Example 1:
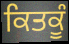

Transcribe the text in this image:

ਕਿਤਕੂੰ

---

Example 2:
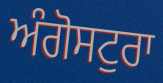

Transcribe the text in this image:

ਅੰਗੋਸਟੁਰਾ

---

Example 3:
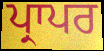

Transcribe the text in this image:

ਪ੍ਰਾਪਰ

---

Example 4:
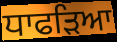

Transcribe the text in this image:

ਧਾਫੜਿਆ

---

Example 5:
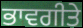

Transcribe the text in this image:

ਭਾਵਗੀਤੇ